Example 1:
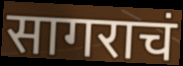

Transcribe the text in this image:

सागराचं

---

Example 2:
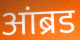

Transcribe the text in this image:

आंब्रड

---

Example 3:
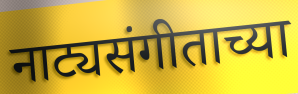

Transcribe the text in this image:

नाट्यसंगीताच्या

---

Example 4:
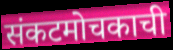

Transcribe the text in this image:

संकटमोचकाची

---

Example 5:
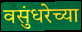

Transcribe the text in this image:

वसुंधरेच्या